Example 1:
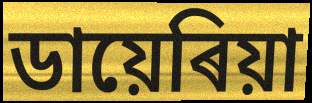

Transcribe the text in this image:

ডায়েৰিয়া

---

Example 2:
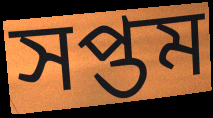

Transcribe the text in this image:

সপ্তম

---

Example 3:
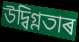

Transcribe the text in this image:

উদ্বিগ্নতাৰ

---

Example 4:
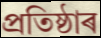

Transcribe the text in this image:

প্ৰতিষ্ঠাৰ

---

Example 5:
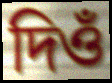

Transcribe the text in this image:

দিওঁ